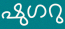
ഷുഗറു